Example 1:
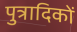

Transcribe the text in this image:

पुत्रादिकों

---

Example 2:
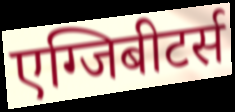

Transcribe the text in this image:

एग्जिबीटर्स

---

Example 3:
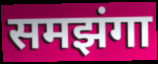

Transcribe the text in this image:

समझंगा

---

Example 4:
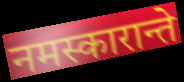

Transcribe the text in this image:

नमस्कारान्ते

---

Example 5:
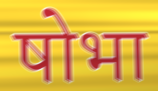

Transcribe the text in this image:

षोभा